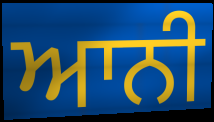
ਆਨੀ